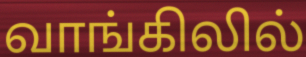
வாங்கிலில்